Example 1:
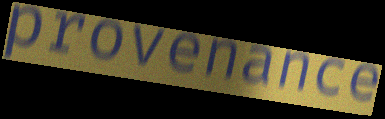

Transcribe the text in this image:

provenance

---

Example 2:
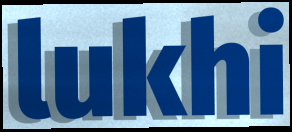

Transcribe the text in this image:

lukhi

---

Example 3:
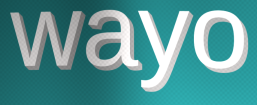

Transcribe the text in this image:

wayo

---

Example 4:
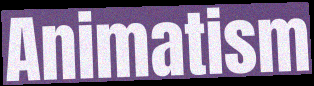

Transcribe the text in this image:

Animatism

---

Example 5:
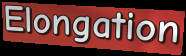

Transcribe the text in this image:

Elongation